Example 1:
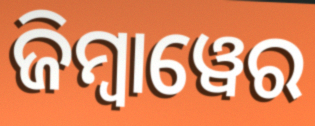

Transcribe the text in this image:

ଜିମ୍ୱାୱେର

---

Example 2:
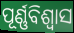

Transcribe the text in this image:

ପୂର୍ଣ୍ଣବିଶ୍ଵାସ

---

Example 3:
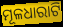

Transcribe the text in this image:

ମୂଳଧାରାଟି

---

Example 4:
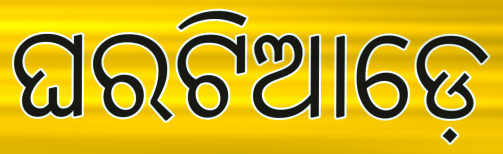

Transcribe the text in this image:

ଘରଟିଆଡ଼େ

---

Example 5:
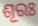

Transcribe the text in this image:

ଶୂରଃ